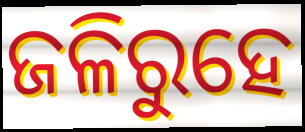
ଜଳିରୁହେ